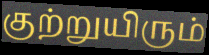
குற்றுயிரும்